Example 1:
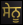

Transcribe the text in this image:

ਸੇਨੂ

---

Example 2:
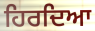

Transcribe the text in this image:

ਹਿਰਦਿਆ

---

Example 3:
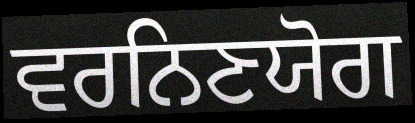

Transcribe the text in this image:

ਵਰਨਿਣਯੋਗ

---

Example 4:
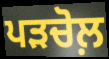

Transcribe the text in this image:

ਪੜਚੋਲ਼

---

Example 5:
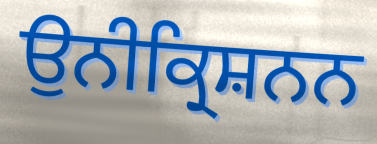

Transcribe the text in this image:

ਉਨੀਕ੍ਰਿਸ਼ਨਨ